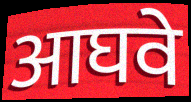
आघवे